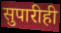
सुपारीही